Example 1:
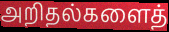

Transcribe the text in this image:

அறிதல்களைத்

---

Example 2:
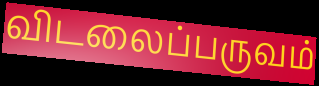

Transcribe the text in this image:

விடலைப்பருவம்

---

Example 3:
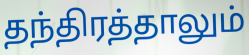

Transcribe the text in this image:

தந்திரத்தாலும்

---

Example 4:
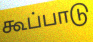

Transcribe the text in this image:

கூப்பாடு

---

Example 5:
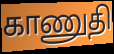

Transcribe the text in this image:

காணுதி